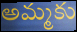
అమ్మకు